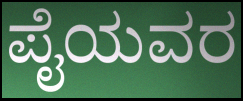
ಪೈಯವರ